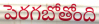
పెరగబోతోంది